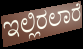
ಇಲ್ಲಿರಲಾರೆ